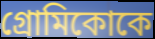
গ্রোমিকোকে